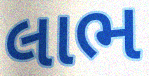
લાભ